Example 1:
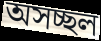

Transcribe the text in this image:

অসচ্ছল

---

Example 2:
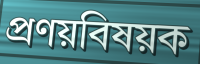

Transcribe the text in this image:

প্রণয়বিষয়ক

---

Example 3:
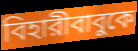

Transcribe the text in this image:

বিহারীবাবুকে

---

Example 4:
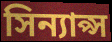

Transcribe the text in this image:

সিন্যাপ্স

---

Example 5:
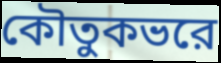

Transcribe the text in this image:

কৌতুকভরে